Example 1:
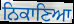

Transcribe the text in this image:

ਨਿਕਾਣਿਆ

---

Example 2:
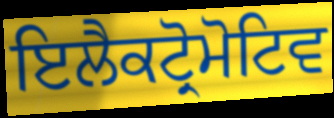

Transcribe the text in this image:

ਇਲੈਕਟ੍ਰੋਮੋਟਿਵ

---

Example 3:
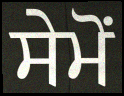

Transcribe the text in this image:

ਸੇਮੋਂ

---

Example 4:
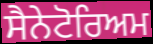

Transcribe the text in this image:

ਸੈਨੇਟੋਰਿਅਮ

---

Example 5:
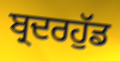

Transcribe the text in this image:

ਬ੍ਰਦਰਹੁੱਡ